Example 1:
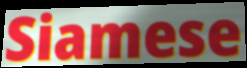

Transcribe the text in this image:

Siamese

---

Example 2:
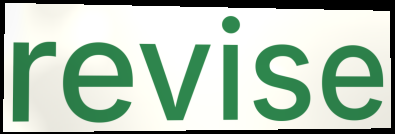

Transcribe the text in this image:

revise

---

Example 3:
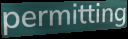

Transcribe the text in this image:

permitting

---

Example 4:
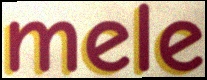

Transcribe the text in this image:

mele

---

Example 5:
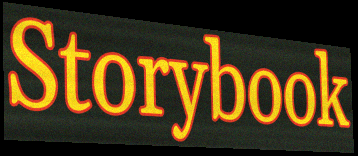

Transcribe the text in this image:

Storybook